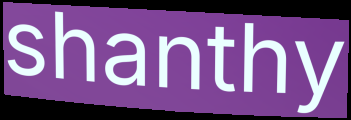
shanthy